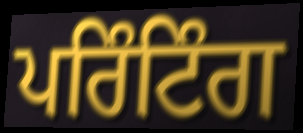
ਪਰਿੰਟਿੰਗ